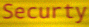
Securty